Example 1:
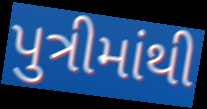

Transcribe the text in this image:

પુત્રીમાંથી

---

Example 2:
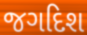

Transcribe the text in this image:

જગદિશ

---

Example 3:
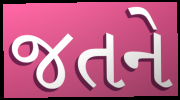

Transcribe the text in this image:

જતને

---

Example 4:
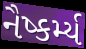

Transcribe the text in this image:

નૈષ્કર્મ્ય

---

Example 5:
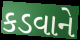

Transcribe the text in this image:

કડવાને